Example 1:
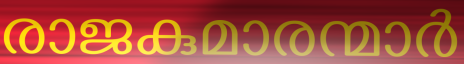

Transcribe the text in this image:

രാജകുമാരന്മാർ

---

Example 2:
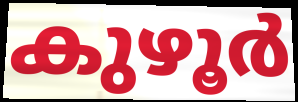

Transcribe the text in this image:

കുഴൂർ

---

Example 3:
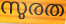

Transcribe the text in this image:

സുരത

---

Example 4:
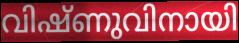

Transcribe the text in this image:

വിഷ്ണുവിനായി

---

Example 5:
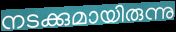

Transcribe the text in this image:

നടക്കുമായിരുന്നു